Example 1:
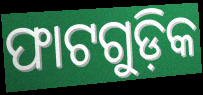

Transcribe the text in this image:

ଫାଟଗୁଡ଼ିକ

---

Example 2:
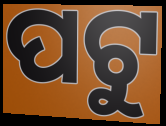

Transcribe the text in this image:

ପଟୁ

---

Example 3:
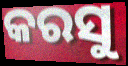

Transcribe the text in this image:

କରସୁ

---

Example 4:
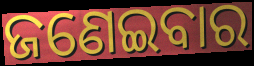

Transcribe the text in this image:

ଜଣେଇବାର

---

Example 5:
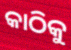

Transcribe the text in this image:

କାଠିକୁ